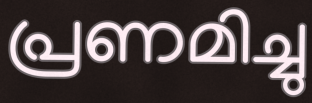
പ്രണമിച്ചു